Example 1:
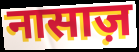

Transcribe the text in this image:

नासाज़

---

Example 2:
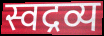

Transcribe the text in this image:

स्वद्रव्य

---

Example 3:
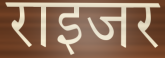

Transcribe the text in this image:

राइजर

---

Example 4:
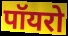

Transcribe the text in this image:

पॉयरो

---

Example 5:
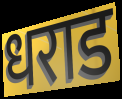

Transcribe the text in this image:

धराड